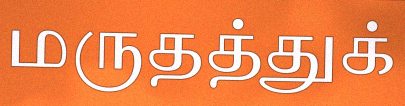
மருதத்துக்